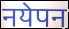
नयेपन